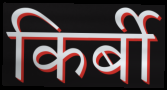
किर्बी